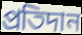
প্ৰতিদান